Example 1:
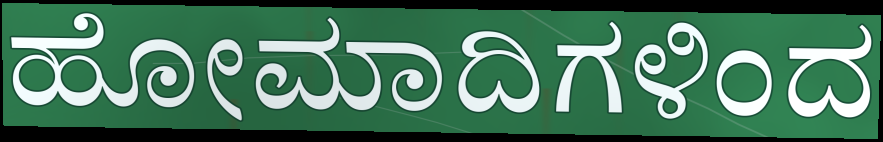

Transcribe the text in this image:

ಹೋಮಾದಿಗಳಿಂದ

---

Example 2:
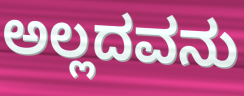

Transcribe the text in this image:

ಅಲ್ಲದವನು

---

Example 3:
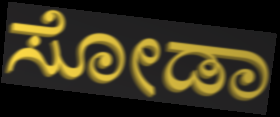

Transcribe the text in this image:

ಸೋಡಾ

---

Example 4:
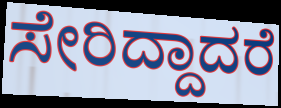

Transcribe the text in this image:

ಸೇರಿದ್ದಾದರೆ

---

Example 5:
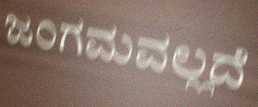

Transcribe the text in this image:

ಜಂಗಮವಲ್ಲದೆ